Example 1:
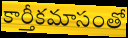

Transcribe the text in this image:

కార్తీకమాసంతో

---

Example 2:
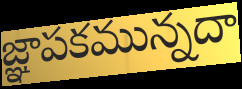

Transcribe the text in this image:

జ్ఞాపకమున్నదా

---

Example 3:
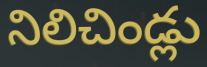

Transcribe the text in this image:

నిలిచిండ్లు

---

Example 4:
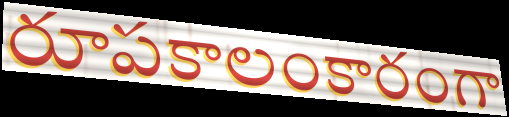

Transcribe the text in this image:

రూపకాలంకారంగా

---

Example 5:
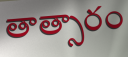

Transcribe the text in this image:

తాత్సారం